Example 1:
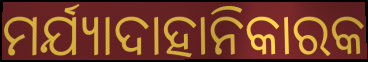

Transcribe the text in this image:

ମର୍ଯ୍ୟାଦାହାନିକାରକ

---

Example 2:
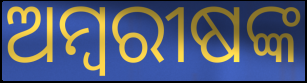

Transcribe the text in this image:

ଅମ୍ବରୀଷଙ୍କ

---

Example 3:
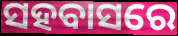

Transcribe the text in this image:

ସହବାସରେ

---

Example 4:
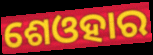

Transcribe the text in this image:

ଶେଓହାର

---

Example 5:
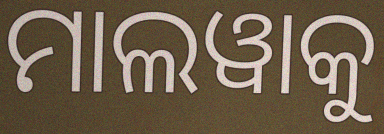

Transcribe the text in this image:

ମାଲୱାକୁ